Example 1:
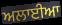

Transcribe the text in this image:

ਅਲਾਈਆ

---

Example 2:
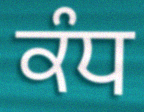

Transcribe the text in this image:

ਕੰਧ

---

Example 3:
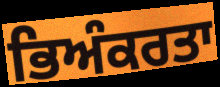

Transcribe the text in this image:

ਭਿਅੰਕਰਤਾ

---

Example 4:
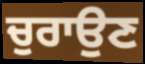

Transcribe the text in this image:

ਚੁਰਾਉਣ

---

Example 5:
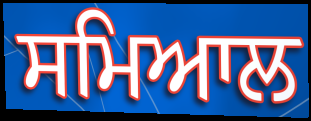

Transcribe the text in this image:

ਸਮਿਆਲ